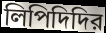
লিপিদিদির